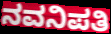
ನವನಿಪತಿ